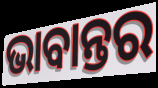
ଭାବାନ୍ତର